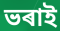
ভৰাই